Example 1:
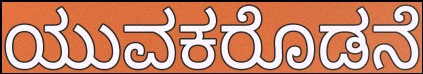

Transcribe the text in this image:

ಯುವಕರೊಡನೆ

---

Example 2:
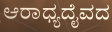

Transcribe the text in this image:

ಆರಾಧ್ಯದೈವದ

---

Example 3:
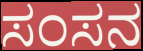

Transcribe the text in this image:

ಸಂಸನ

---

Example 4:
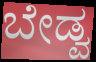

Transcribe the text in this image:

ಬೇಡ್ವ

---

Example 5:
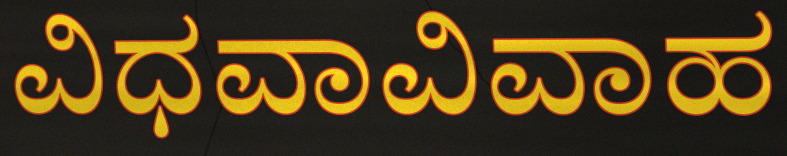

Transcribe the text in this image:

ವಿಧವಾವಿವಾಹ